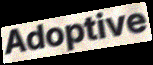
Adoptive